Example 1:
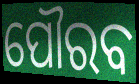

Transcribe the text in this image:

ପୌରବ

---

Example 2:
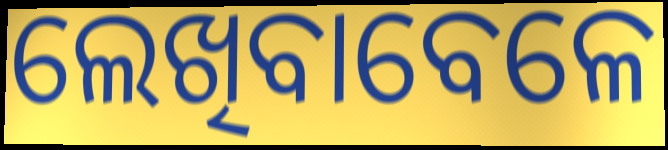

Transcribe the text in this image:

ଲେଖିବାବେଳେ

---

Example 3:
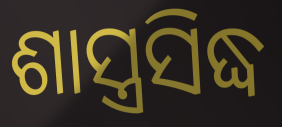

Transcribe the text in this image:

ଶାସ୍ତ୍ରସିଦ୍ଧ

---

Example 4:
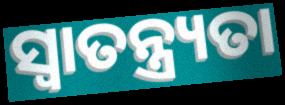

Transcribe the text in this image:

ସ୍ୱାତନ୍ତ୍ର୍ୟତା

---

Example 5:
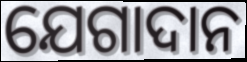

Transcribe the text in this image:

ଯେଗାଦାନ